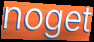
noget